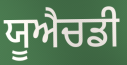
ਯੂਐਚਡੀ